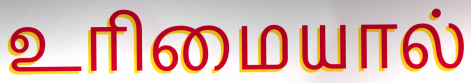
உரிமையால்